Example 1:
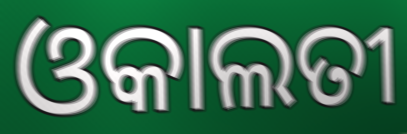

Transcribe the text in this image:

ଓକାଲତୀ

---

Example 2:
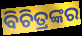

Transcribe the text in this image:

ବିଚିତ୍ରଙ୍କର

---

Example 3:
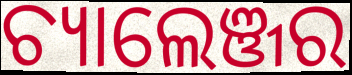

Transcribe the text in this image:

ଚ୍ୟାଲେଞ୍ଜର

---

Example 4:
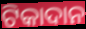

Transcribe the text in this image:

ଟିକାଦାନ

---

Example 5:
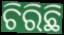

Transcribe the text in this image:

ଚିରିଛି